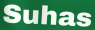
Suhas